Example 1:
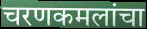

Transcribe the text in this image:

चरणकमलांचा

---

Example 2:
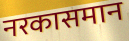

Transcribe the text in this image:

नरकासमान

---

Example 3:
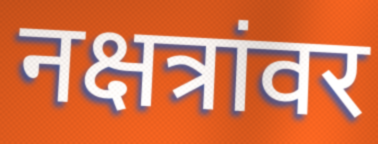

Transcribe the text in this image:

नक्षत्रांवर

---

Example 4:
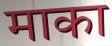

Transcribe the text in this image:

माका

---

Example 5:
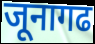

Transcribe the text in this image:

जूनागढ